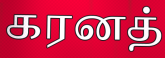
கரனத்